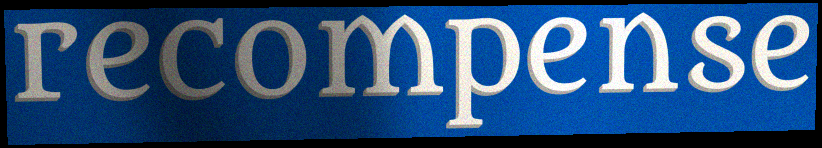
recompense